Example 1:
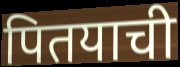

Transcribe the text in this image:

पितयाची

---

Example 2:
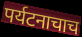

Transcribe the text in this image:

पर्यटनाचाच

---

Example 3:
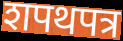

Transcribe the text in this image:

शपथपत्र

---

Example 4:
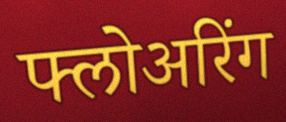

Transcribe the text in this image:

फ्लोअरिंग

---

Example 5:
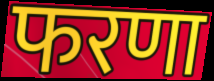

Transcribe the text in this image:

फरणा